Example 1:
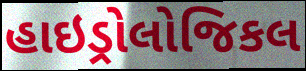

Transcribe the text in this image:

હાઇડ્રોલોજિકલ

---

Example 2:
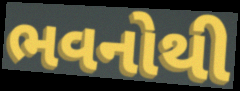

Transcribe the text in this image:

ભવનોથી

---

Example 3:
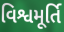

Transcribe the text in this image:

વિશ્વમૂર્તિ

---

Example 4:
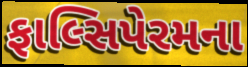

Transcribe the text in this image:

ફાલ્સિપેરમના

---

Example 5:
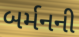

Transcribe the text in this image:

બર્મનની